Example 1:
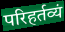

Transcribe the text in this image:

परिहर्तव्यं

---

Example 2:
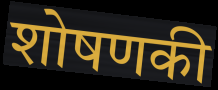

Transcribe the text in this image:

शोषणकी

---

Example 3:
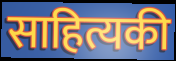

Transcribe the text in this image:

साहित्यकी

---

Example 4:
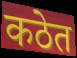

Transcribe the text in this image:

कठेत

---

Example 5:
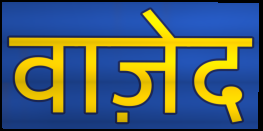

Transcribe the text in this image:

वाज़ेद